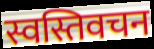
स्वस्तिवचन